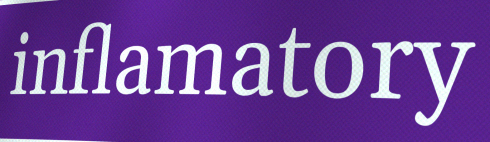
inflamatory